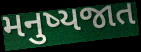
મનુષ્યજાત